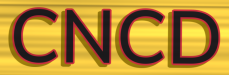
CNCD